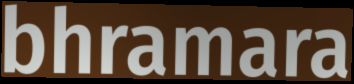
bhramara